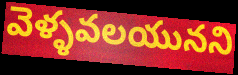
వెళ్ళవలయునని